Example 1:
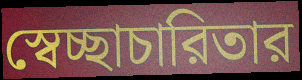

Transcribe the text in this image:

স্বেচ্ছাচারিতার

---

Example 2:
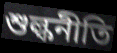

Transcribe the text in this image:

শুল্কনীতি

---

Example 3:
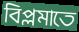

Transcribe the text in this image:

বিপ্লমাতে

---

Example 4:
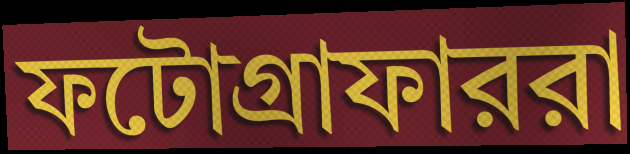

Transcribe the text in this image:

ফটোগ্রাফাররা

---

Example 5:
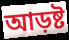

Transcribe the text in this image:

আড়ষ্ট